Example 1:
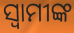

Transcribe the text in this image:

ସ୍ବାମୀଙ୍କ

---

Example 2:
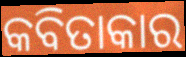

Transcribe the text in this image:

କବିତାକାର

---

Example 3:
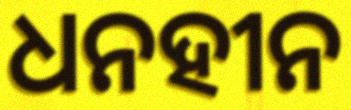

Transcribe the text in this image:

ଧନହୀନ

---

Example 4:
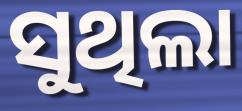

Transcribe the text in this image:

ସୁଥିଲା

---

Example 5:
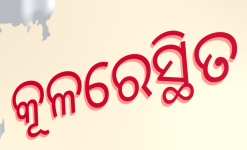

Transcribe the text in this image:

କୂଳରେସ୍ଥିତ